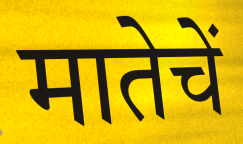
मातेचें